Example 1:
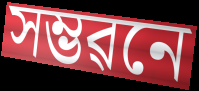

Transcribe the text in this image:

সম্ভৱনে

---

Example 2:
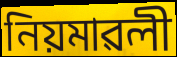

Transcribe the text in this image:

নিয়মাৱলী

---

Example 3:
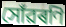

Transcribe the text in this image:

সোঁৱৰণি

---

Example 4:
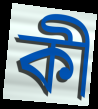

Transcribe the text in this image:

কী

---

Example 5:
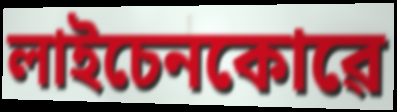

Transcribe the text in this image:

লাইচেনকোৱে